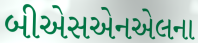
બીએસએનએલના